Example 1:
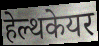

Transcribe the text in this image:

हेल्थकेयर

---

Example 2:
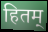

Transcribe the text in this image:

हितम्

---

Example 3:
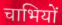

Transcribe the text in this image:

चाभियों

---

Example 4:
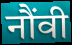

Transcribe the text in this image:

नौंवी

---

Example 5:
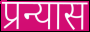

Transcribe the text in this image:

प्रन्यास